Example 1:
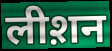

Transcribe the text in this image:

लीश़न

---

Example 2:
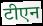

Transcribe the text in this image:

टीएन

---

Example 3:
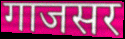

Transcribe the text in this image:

गाजसर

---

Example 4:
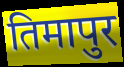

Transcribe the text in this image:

तिमापुर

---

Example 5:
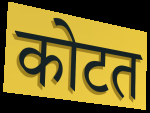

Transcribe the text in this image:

कोटत